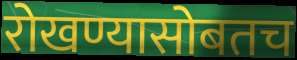
रोखण्यासोबतच